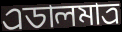
এডালমাত্ৰ